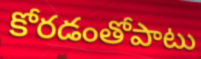
కోరడంతోపాటు